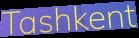
Tashkent